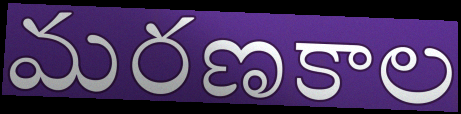
మరణకాల